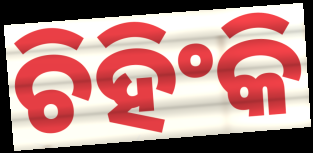
ଚିହିଂକି